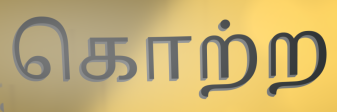
கொற்ற